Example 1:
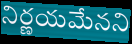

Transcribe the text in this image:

నిర్ణయమేనని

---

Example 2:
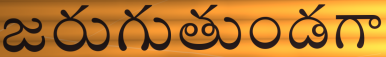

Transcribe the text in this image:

జరుగుతుండగా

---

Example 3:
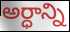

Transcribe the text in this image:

అర్ధాన్ని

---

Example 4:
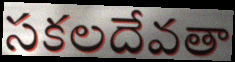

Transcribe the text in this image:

సకలదేవతా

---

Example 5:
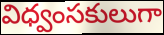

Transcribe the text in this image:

విధ్వంసకులుగా